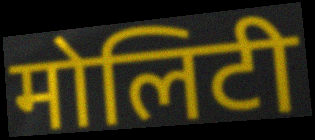
मोलिटी